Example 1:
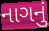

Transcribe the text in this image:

નાગનું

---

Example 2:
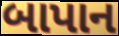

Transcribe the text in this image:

બાપાન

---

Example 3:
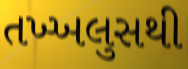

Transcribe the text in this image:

તખ્ખલુસથી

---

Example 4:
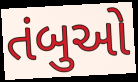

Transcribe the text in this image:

તંબુઓ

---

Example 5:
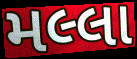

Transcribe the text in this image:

મલ્લા